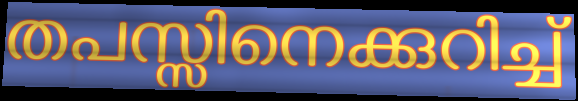
തപസ്സിനെക്കുറിച്ച്